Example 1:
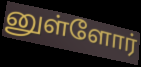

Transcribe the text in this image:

னுள்ளோர்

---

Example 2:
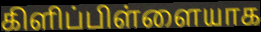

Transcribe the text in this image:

கிளிப்பிள்ளையாக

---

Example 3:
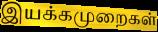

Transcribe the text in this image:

இயக்கமுறைகள்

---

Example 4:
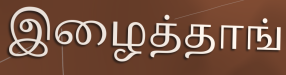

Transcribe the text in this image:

இழைத்தாங்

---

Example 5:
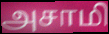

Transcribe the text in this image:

அசாமி